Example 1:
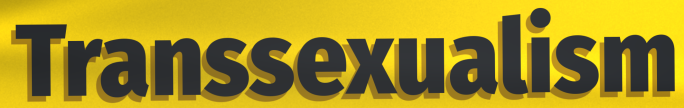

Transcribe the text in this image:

Transsexualism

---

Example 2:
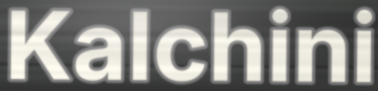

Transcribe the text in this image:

Kalchini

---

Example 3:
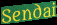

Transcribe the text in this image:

Sendai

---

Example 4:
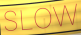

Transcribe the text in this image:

SLOW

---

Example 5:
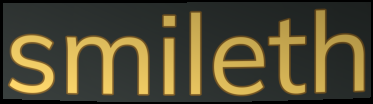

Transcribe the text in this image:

smileth